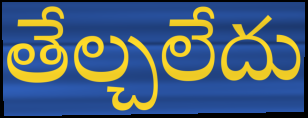
తేల్చలేదు